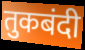
तुकबंदी